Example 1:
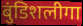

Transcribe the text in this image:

बुंडिशलीगा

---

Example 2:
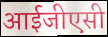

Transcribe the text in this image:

आईजीएसी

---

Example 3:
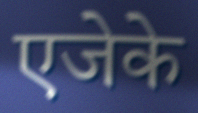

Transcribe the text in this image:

एजेके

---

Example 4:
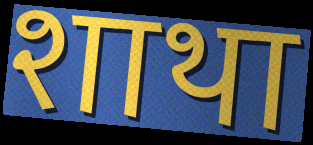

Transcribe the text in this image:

शाथा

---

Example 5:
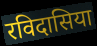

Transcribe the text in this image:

रविदासिया